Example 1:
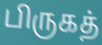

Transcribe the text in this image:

பிருகத்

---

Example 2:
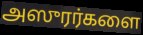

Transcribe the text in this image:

அஸுரர்களை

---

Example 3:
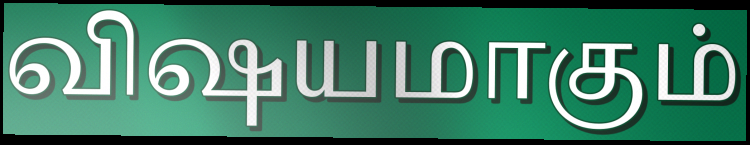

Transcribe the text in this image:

விஷயமாகும்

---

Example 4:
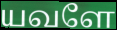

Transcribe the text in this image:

யவளே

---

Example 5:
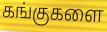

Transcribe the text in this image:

கங்குகளை